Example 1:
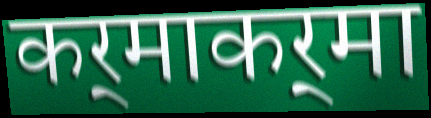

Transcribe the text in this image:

कर्माकर्मा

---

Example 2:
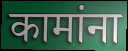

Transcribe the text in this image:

कामांना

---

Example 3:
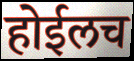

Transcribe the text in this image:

होईलच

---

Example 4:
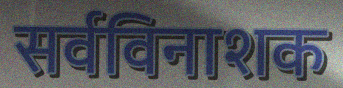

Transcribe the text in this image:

सर्वविनाशक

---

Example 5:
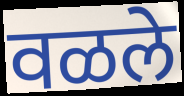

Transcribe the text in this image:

वळले